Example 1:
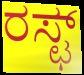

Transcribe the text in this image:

ರಸ್ಟ್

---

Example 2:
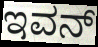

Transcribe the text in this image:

ಇವನ್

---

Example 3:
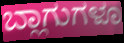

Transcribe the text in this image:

ಬ್ಲಾಗುಗಳೂ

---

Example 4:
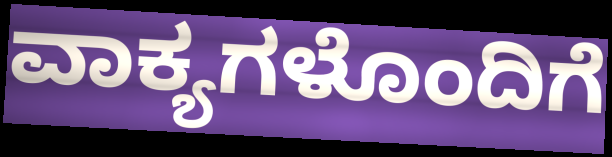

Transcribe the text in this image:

ವಾಕ್ಯಗಳೊಂದಿಗೆ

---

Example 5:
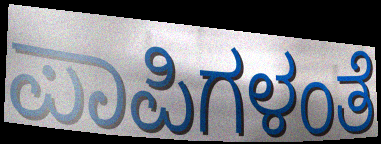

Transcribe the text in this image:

ಪಾಪಿಗಳಂತೆ